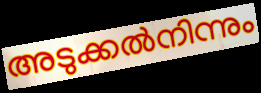
അടുക്കൽനിന്നും